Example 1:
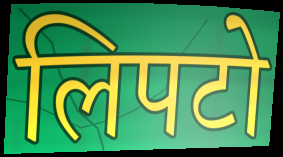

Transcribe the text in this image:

लिपटो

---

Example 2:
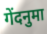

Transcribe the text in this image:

गेंदनुमा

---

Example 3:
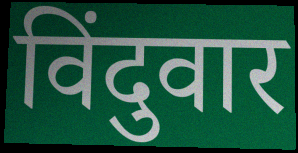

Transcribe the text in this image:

विंदुवार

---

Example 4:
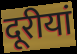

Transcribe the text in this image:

दूरीयां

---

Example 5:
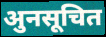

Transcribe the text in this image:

अुनसूचित